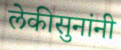
लेकीसुनांनी